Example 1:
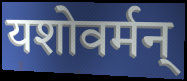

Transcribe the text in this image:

यशोवर्मन्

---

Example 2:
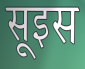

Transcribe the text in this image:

सूइस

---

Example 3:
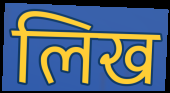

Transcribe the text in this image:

लिख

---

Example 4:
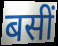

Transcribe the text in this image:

बसीं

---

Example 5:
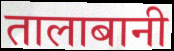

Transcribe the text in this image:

तालाबानी